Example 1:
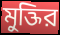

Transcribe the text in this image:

মুক্তির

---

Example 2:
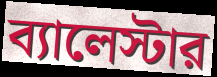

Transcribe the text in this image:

ব্যালেস্টার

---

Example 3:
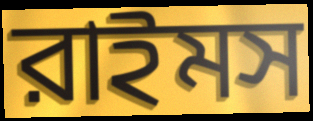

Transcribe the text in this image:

রাইমস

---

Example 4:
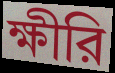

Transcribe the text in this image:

ক্ষীরি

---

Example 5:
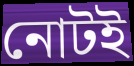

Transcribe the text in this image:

নোটই